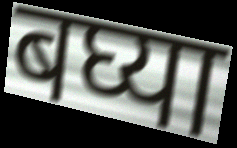
बघ्या